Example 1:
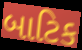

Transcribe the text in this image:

બાટિક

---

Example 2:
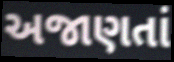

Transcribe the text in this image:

અજાણતાં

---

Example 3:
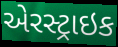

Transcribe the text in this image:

એરસ્ટ્રાઇક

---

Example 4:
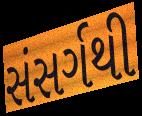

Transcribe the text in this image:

સંસર્ગથી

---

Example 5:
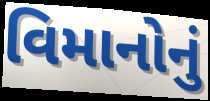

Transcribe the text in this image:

વિમાનોનું